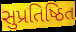
સુપ્રતિષ્ઠિત